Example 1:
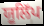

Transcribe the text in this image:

ਯੂਲਿੱਪ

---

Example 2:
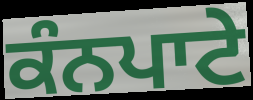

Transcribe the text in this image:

ਕੰਨਪਾਟੇ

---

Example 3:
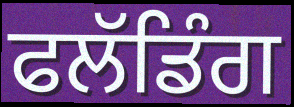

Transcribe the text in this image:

ਫਲੱਡਿੰਗ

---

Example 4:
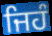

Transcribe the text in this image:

ਜਿਹੰ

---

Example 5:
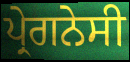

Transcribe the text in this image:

ਪ੍ਰੇਗਨੇਸੀ